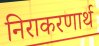
निराकरणार्थ